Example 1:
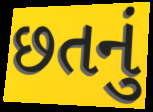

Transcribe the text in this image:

છતનું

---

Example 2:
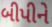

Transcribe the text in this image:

બીપીને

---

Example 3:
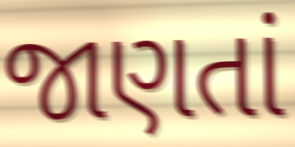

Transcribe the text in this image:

જાણતાં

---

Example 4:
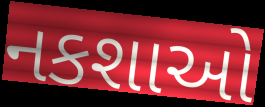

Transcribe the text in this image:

નકશાઓ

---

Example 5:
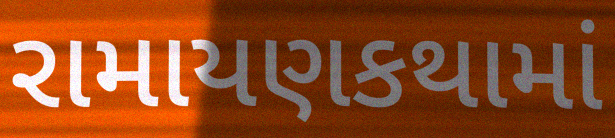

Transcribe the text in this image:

રામાયણકથામાં